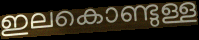
ഇലകൊണ്ടുള്ള